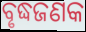
ବୃଦ୍ଧଜଣକ